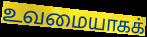
உவமையாகக்